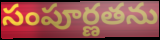
సంపూర్ణతను